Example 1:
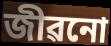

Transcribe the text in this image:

জীৱনো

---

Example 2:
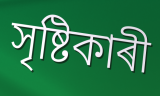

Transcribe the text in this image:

সৃষ্টিকাৰী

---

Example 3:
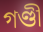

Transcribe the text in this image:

গণ্ডী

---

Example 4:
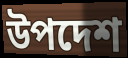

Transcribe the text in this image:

উপদেশ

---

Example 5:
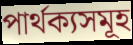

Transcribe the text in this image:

পাৰ্থক্যসমূহ